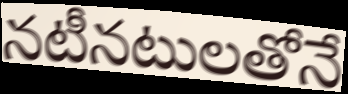
నటీనటులతోనే